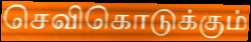
செவிகொடுக்கும்